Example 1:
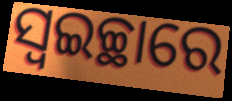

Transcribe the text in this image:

ସ୍ୱଇଚ୍ଛାରେ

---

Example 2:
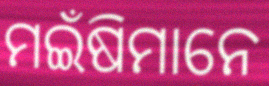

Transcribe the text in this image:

ମଇଁଷିମାନେ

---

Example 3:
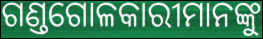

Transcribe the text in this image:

ଗଣ୍ଡଗୋଳକାରୀମାନଙ୍କୁ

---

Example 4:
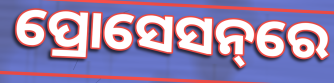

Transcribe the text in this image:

ପ୍ରୋସେସନ୍‌ରେ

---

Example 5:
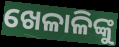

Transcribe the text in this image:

ଖେଳାଳିଙ୍କୁ